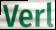
Verl